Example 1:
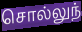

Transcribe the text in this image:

சொல்லுந்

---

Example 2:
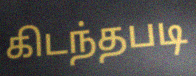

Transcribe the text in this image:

கிடந்தபடி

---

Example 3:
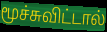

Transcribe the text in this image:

மூச்சுவிட்டால்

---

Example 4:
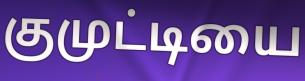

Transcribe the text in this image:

குமுட்டியை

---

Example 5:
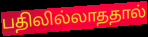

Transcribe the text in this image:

பதிலில்லாததால்